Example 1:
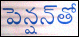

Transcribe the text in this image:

పెన్షన్‌తో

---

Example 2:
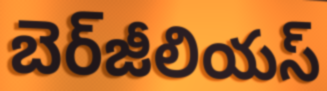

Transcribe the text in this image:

బెర్‌జీలియస్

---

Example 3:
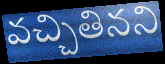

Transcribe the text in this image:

వచ్చితినని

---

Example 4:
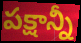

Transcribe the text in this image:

పక్షాన్నీ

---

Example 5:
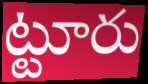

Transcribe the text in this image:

ట్టూరు